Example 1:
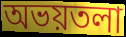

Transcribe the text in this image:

অভয়তলা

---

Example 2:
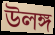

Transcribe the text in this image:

উলঙ্গ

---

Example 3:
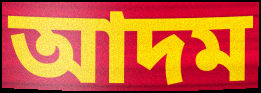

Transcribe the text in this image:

আদম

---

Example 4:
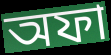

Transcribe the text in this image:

অফা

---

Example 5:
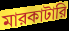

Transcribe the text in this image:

মারকাটারি